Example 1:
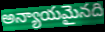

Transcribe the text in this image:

అన్యాయమైనది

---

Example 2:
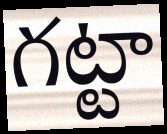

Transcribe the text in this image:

గట్టా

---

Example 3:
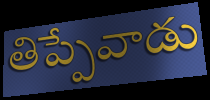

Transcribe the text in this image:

తిప్పేవాడు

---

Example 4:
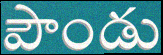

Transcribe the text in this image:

పౌండు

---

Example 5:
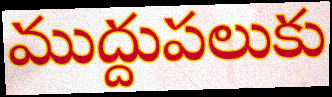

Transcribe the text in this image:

ముద్దుపలుకు